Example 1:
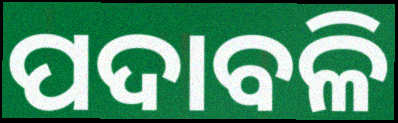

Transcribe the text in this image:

ପଦାବଳି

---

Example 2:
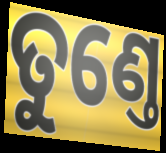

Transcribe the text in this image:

ତୁଣ୍ତେ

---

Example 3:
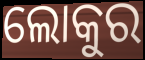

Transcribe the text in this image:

ଲୋକୁର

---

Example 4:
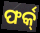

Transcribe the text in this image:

ଫର୍କ୍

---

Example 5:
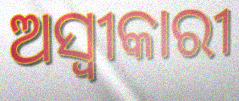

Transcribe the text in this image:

ଅସ୍ଵୀକାରୀ